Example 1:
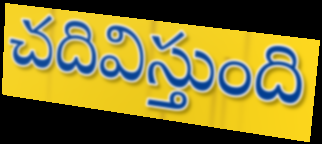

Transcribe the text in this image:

చదివిస్తుంది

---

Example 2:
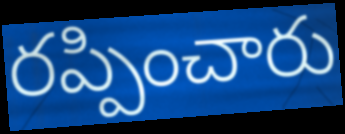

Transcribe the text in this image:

రప్పించారు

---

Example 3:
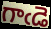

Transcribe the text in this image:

గాఁడె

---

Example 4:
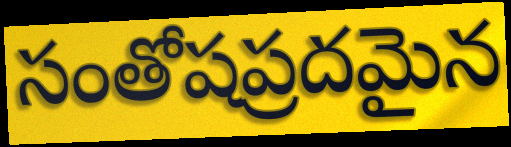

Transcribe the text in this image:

సంతోషప్రదమైన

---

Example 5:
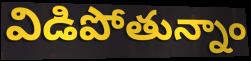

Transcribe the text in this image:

విడిపోతున్నాం